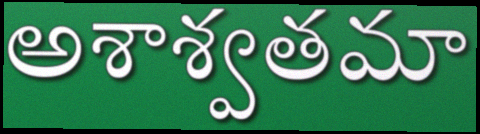
అశాశ్వతమా